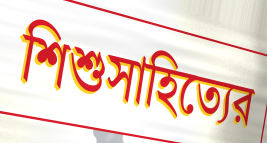
শিশুসাহিত্যের